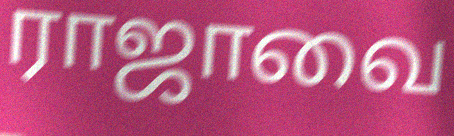
ராஜாவை